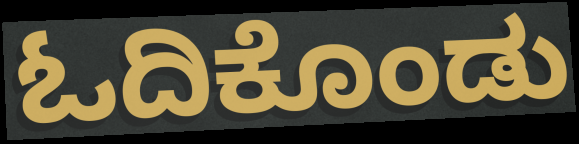
ಓದಿಕೊಂಡು